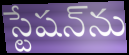
స్టేషన్‌ను